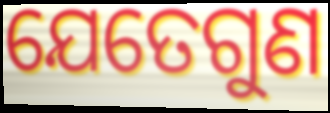
ଯେତେଗୁଣ